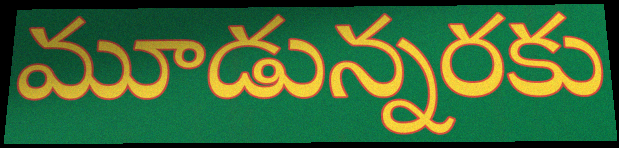
మూడున్నరకు